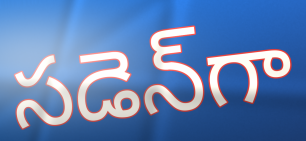
సడెన్‌గా